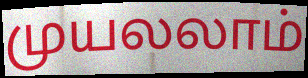
முயலலாம்